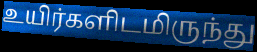
உயிர்களிடமிருந்து